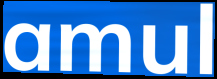
amul